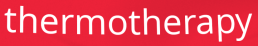
thermotherapy